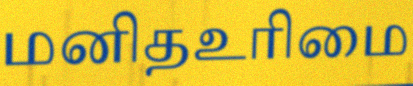
மனிதஉரிமை